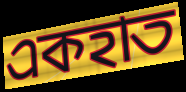
একহাত